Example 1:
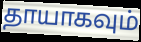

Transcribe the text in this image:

தாயாகவும்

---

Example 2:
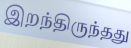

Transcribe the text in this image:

இறந்திருந்தது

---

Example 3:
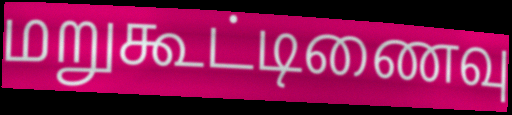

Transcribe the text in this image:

மறுகூட்டிணைவு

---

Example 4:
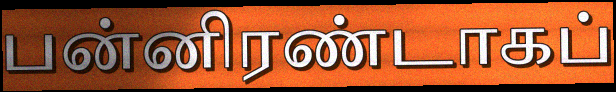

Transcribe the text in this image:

பன்னிரண்டாகப்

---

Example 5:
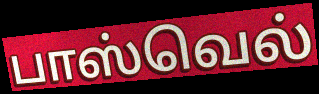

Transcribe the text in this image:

பாஸ்வெல்